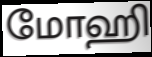
மோஹி